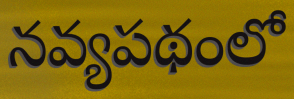
నవ్యపథంలో